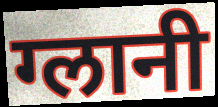
ग्लानी